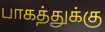
பாகத்துக்கு